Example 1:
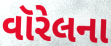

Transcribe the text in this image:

વૉરેલના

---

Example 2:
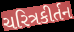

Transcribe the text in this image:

ચરિત્રકીર્તન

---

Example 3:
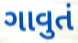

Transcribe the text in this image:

ગાવુતં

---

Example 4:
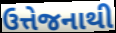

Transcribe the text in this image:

ઉત્તેજનાથી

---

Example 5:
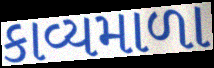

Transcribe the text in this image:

કાવ્યમાળા